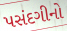
પસંદગીનો